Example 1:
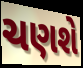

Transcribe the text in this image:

ચણશે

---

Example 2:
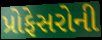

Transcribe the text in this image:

પ્રોફેસરોની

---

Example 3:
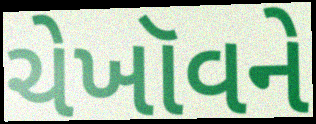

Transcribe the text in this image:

ચેખૉવને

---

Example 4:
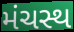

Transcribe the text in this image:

મંચસ્થ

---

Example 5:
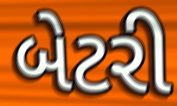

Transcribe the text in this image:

બેટરી